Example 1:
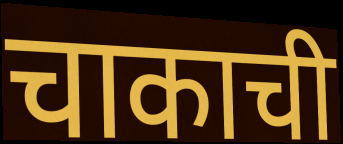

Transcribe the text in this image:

चाकाची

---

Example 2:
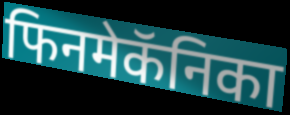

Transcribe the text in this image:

फिनमेकॅनिका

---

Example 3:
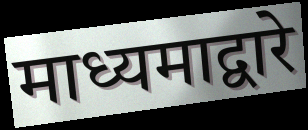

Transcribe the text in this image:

माध्यमाद्वारे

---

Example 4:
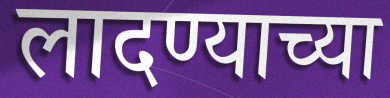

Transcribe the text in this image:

लादण्याच्या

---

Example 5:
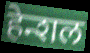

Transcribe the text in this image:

हेन्शल